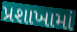
પ્રશાખામાં